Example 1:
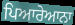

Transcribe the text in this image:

ਪਿਆਰੇਆਨਾ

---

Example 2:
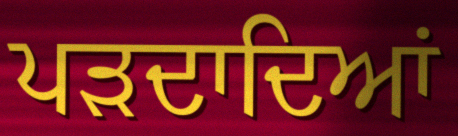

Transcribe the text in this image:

ਪੜਦਾਦਿਆਂ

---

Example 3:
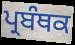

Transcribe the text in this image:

ਪ੍ਰਬੰਥਕ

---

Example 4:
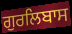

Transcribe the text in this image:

ਗੁਰਲਿਬਾਸ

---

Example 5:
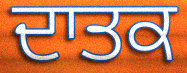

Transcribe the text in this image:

ਦਾਤਕ